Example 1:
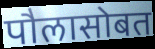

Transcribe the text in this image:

पौलासोबत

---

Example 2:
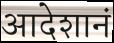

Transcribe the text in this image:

आदेशानं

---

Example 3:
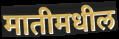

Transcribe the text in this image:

मातीमधील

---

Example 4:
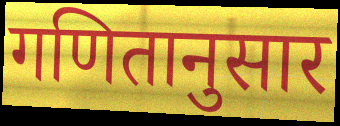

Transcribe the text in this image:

गणितानुसार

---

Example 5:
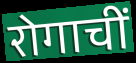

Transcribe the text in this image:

रोगाचीं